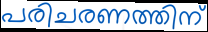
പരിചരണത്തിന്